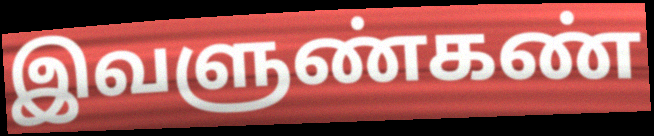
இவளுண்கண்